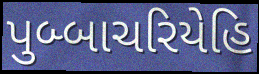
પુબ્બાચરિયેહિ